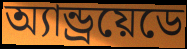
অ্যান্ড্রয়েডে